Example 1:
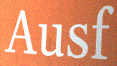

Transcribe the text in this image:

Ausf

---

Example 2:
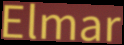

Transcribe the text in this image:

Elmar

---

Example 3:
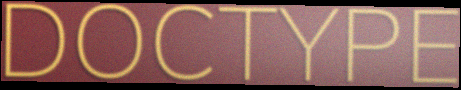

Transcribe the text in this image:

DOCTYPE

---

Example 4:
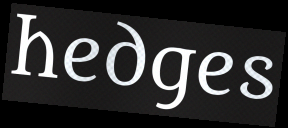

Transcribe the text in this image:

hedges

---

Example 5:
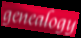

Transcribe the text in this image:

genealogy